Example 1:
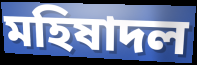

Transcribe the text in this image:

মহিষাদল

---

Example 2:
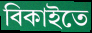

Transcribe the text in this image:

বিকাইতে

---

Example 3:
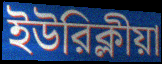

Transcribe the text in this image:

ইউরিক্লীয়া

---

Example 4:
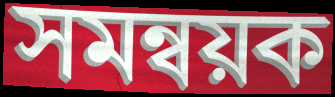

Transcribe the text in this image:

সমন্বয়ক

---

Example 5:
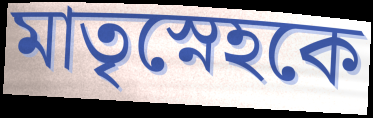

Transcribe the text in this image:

মাতৃস্নেহকে